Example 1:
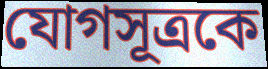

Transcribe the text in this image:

যোগসূত্রকে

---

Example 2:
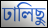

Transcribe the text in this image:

ঢালিছু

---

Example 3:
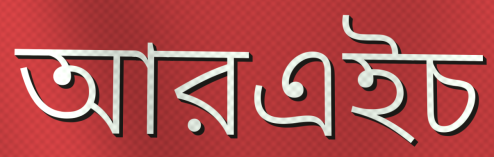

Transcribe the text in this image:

আরএইচ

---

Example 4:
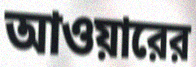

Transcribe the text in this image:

আওয়ারের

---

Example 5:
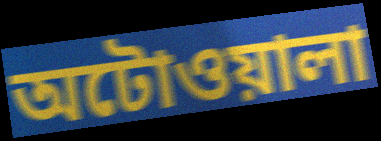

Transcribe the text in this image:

অটোওয়ালা